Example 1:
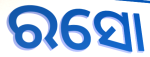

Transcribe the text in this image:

ରସୋ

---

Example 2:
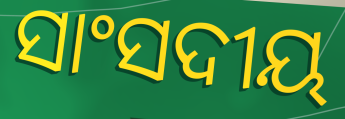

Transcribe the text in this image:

ସାଂସଦୀୟ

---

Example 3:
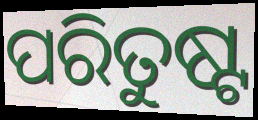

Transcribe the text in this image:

ପରିତୁଷ୍ଟ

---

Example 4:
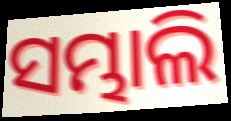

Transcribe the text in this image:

ସମ୍ଭାଲି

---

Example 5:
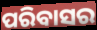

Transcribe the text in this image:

ପରିବାସର